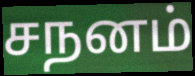
சநனம்